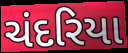
ચંદરિયા